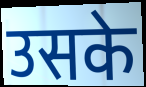
उसके